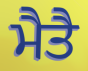
ਮੈਤੈ